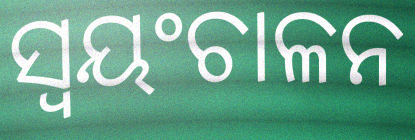
ସ୍ବୟଂଚାଳନ